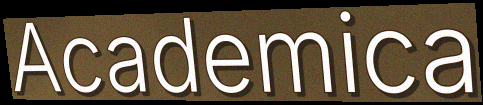
Academica